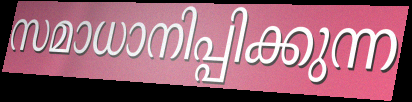
സമാധാനിപ്പിക്കുന്ന